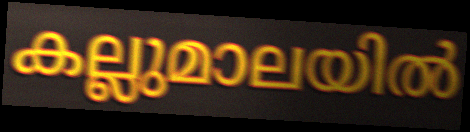
കല്ലുമാലയിൽ